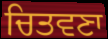
ਚਿਤਵਣਾ